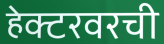
हेक्टरवरची